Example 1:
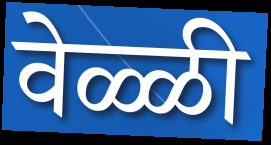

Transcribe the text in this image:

वेळ्ळी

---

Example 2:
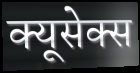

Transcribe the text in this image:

क्यूसेक्स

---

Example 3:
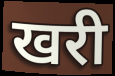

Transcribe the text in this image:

खरी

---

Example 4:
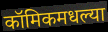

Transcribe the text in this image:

कॉमिकमधल्या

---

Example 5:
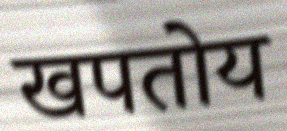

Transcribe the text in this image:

खपतोय